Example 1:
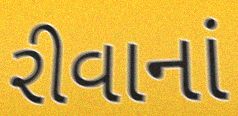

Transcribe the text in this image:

રીવાનાં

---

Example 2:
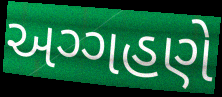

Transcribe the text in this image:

અગ્ગહણે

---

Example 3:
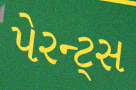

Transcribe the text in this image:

પેરન્ટ્સ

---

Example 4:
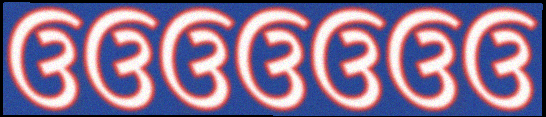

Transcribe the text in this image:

ઉઉઉઉઉઉઉ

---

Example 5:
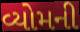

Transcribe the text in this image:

વ્યોમની